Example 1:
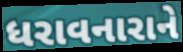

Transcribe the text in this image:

ધરાવનારાને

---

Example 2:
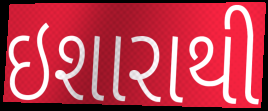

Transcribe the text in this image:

ઇશારાથી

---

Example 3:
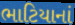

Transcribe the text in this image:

ભાટિયાનાં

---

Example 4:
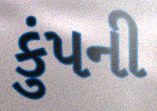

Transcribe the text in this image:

કુંપની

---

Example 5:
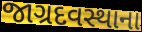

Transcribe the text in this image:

જાગ્રદવસ્થાના